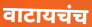
वाटायचंच